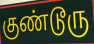
குண்டூரு